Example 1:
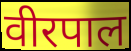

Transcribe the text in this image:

वीरपाल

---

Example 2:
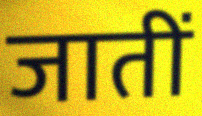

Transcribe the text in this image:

जातीं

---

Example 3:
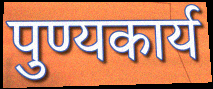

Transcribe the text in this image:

पुण्यकार्य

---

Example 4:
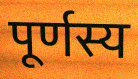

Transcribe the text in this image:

पूर्णस्य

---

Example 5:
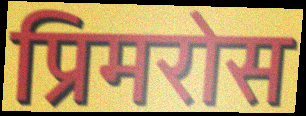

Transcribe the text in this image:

प्रिमरोस